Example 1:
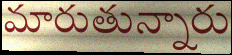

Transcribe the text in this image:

మారుతున్నారు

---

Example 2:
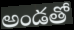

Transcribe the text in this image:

అండతో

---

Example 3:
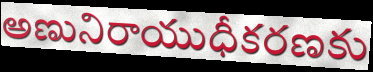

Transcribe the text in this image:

అణునిరాయుధీకరణకు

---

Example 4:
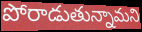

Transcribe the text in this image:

పోరాడుతున్నామని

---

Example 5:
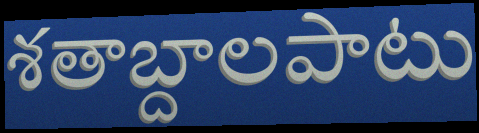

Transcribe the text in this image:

శతాబ్దాలపాటు